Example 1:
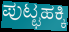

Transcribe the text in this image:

ಪುಟ್ಟಹಕ್ಕಿ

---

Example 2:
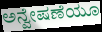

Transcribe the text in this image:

ಅನ್ವೇಷಣೆಯೂ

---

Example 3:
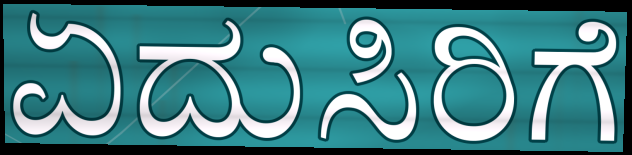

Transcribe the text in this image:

ಏದುಸಿರಿಗೆ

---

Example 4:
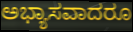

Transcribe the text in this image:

ಅಭ್ಯಾಸವಾದರೂ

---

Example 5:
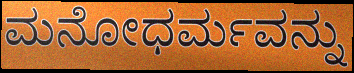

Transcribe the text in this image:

ಮನೋಧರ್ಮವನ್ನು